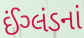
ઈંગ્લંડનાં